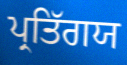
ਪ੍ਰਤਿੱਗਯ